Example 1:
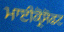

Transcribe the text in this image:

ਮਾਈਕ੍ਰੋਸੋਫਟ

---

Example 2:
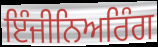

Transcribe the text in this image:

ਇੰਜੀਨਿਅਰਿੰਗ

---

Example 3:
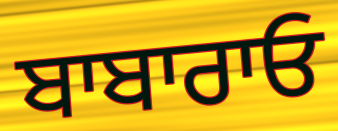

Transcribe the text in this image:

ਬਾਬਾਰਾਓ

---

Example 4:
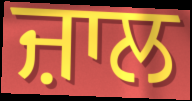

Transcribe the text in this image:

ਜ਼ਾਲ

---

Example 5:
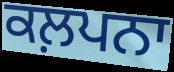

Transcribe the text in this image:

ਕਲ਼ਪਨਾ